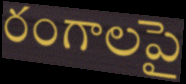
రంగాలపై